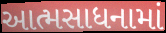
આત્મસાધનામાં